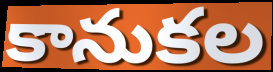
కానుకల